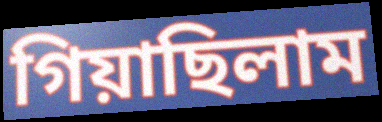
গিয়াছিলাম